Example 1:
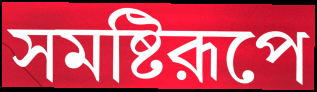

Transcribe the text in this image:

সমষ্টিরূপে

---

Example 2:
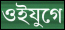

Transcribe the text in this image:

ওইযুগে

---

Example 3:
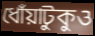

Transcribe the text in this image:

ধোঁয়াটুকুও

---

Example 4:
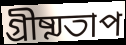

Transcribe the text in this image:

গ্রীষ্মতাপ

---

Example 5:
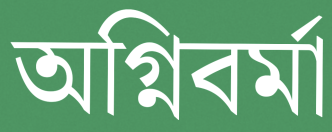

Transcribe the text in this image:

অগ্নিবর্মা